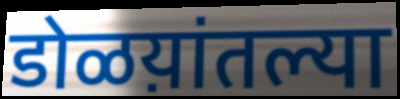
डोळय़ांतल्या